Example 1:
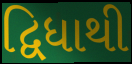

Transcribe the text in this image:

દ્વિધાથી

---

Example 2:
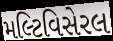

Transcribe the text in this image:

મલ્ટિવિસેરલ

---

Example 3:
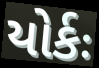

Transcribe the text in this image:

યોર્કઃ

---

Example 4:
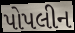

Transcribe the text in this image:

પોપલીન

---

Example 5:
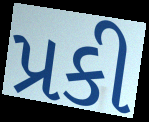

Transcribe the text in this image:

પ્રકી